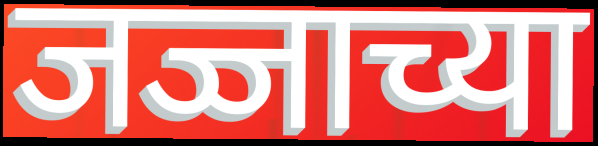
जज्जाच्या